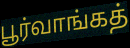
பூர்வாங்கத்